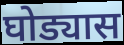
घोड्यास